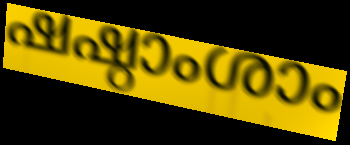
ഷഷ്ഠാംശാം